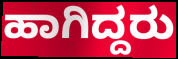
ಹಾಗಿದ್ದರು